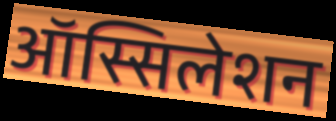
ऑस्सिलेशन